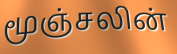
மூஞ்சலின்